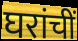
घरांचीं